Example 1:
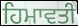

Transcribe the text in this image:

ਹਿਮਾਵਤੀ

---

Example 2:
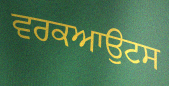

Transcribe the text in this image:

ਵਰਕਆਉਟਸ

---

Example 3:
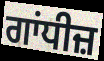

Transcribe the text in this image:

ਗਾਂਧੀਜ਼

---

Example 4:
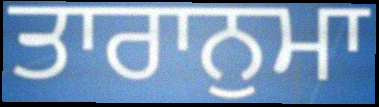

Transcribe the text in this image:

ਤਾਰਾਨੁਮਾ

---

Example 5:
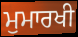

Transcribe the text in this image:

ਮੁਮਾਰਖੀ